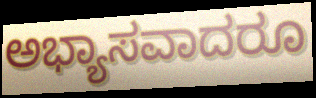
ಅಭ್ಯಾಸವಾದರೂ